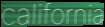
california